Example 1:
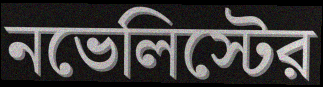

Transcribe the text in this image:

নভেলিস্টের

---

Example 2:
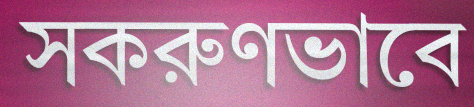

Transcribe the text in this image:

সকরুণভাবে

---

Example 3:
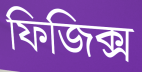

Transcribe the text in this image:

ফিজিক্স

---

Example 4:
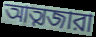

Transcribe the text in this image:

আত্মজারা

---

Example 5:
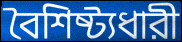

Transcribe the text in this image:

বৈশিষ্ট্যধারী